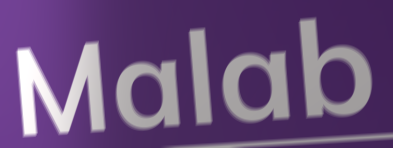
Malab